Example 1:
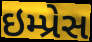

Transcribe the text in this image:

ઇમ્પ્રેસ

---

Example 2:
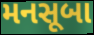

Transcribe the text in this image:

મનસૂબા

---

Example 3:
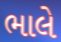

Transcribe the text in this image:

ભાલે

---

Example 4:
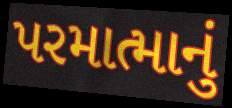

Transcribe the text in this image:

પરમાત્માનું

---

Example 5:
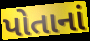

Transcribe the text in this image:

પોતાનાં